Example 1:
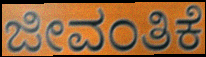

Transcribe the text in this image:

ಜೀವಂತಿಕೆ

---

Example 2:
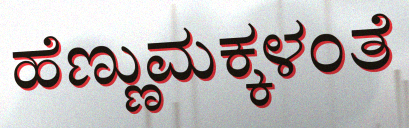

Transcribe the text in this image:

ಹೆಣ್ಣುಮಕ್ಕಳಂತೆ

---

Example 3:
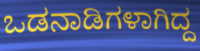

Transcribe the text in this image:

ಒಡನಾಡಿಗಳಾಗಿದ್ದ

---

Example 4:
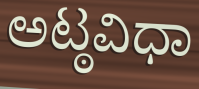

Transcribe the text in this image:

ಅಟ್ಠವಿಧಾ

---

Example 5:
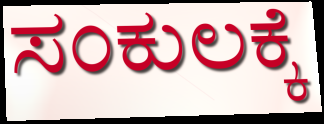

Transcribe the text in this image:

ಸಂಕುಲಕ್ಕೆ